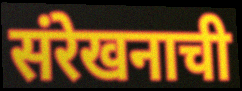
संरेखनाची